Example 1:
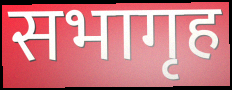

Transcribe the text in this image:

सभागृह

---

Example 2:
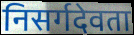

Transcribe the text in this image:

निसर्गदेवता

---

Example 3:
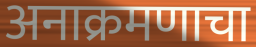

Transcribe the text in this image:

अनाक्रमणाचा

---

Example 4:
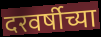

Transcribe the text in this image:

दरवर्षीच्या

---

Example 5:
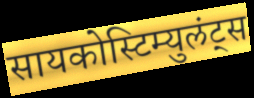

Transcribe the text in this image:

सायकोस्टिम्युलंट्स